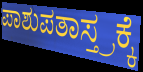
ಪಾಶುಪತಾಸ್ತ್ರಕ್ಕೆ